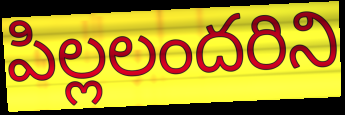
పిల్లలందరిని